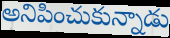
అనిపించుకున్నాడు